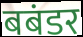
बबंडर